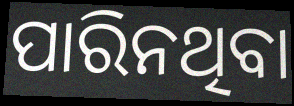
ପାରିନଥିବା